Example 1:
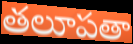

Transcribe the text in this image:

తలూపతా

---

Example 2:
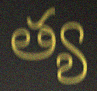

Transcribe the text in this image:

త్య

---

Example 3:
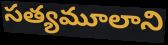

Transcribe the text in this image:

సత్యమూలాని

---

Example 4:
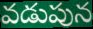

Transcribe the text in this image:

వడుపున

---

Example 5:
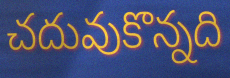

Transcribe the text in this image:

చదువుకొన్నది